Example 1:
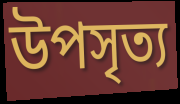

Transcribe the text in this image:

উপসৃত্য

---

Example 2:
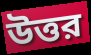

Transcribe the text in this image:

উত্তর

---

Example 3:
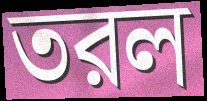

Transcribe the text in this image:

তরল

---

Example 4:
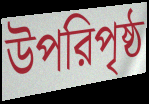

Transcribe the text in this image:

উপরিপৃষ্ঠ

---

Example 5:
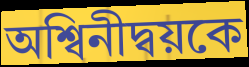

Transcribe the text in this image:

অশ্বিনীদ্বয়কে